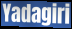
Yadagiri